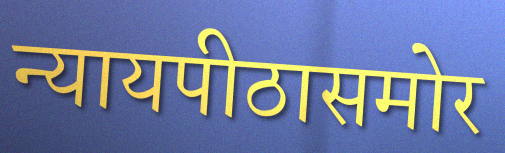
न्यायपीठासमोर